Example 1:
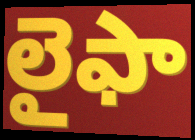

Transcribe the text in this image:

లైఫా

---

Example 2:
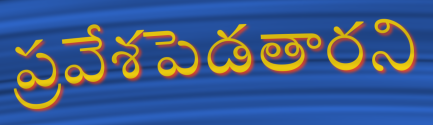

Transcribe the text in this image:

ప్రవేశపెడతారని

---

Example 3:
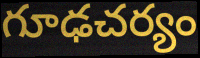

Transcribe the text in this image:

గూఢచర్యం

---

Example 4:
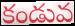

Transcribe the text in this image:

కండువ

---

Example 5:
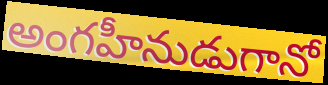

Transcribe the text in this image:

అంగహీనుడుగానో